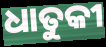
ଧାତୁକୀ